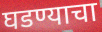
घडण्याचा